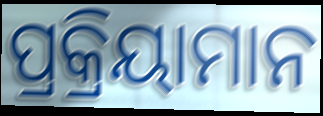
ପ୍ରକ୍ରିୟାମାନ